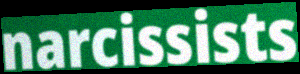
narcissists